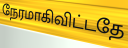
நேரமாகிவிட்டதே